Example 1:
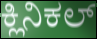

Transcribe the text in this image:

ಕ್ಲಿನಿಕಲ್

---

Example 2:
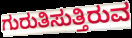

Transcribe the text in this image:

ಗುರುತಿಸುತ್ತಿರುವ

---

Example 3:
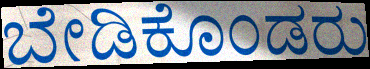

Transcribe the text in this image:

ಬೇಡಿಕೊಂಡರು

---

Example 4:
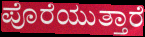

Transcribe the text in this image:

ಪೊರೆಯುತ್ತಾರೆ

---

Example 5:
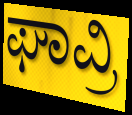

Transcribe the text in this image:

ಘಾವ್ರಿ